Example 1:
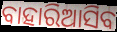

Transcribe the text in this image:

ବାହାରିଆସିବ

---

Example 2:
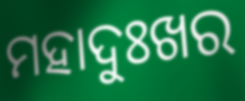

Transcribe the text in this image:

ମହାଦୁଃଖର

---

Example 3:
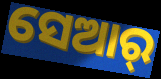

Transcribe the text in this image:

ସେଆର୍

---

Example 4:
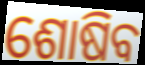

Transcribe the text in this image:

ଶୋଷିବ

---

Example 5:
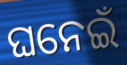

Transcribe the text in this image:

ଘନେଇଁ